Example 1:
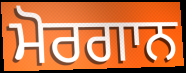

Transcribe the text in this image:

ਮੋਰਗਾਨ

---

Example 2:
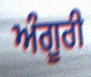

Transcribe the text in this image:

ਅੰਗੂਰੀ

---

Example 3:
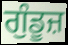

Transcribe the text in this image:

ਗੁੰਡੂਜ਼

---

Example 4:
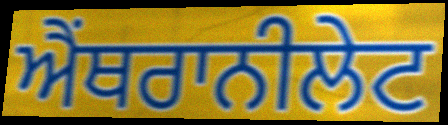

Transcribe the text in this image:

ਐਂਥਰਾਨੀਲੇਟ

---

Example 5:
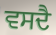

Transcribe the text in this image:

ਵਸਦੈ